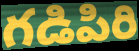
గడిపిరి